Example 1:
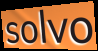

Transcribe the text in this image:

solvo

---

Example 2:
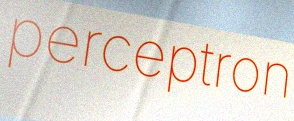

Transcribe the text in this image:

perceptron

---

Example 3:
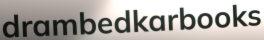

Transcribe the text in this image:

drambedkarbooks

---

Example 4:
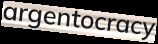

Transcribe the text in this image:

argentocracy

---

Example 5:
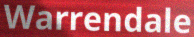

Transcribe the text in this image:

Warrendale